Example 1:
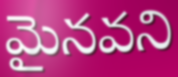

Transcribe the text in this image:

మైనవని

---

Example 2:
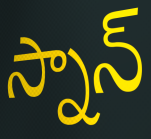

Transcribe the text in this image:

స్నాన్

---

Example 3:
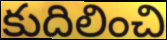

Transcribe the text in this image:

కుదిలించి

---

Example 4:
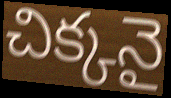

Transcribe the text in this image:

చిక్కనై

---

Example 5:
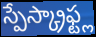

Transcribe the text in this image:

స్పేస్క్రాఫ్ట్ల